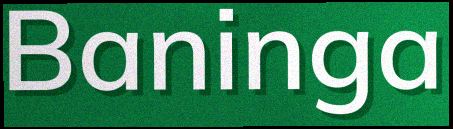
Baninga